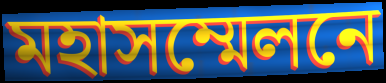
মহাসম্মেলনে